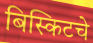
बिस्किटचे